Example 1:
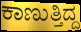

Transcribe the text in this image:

ಕಾಣುತ್ತಿದ್ದ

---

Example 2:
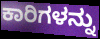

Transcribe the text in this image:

ಕಾರಿಗಳನ್ನು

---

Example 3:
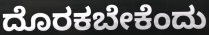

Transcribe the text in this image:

ದೊರಕಬೇಕೆಂದು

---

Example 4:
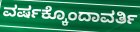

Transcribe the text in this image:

ವರ್ಷಕ್ಕೊಂದಾವರ್ತಿ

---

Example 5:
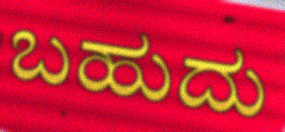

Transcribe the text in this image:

ಬಹುದು